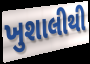
ખુશાલીથી